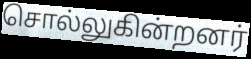
சொல்லுகின்றனர்